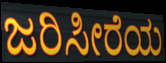
ಜರಿಸೀರೆಯ